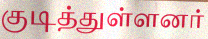
குடித்துள்ளனர்